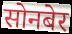
सोनबेर